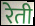
रेती